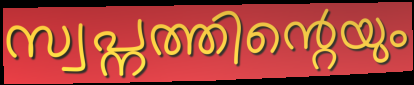
സ്വപ്നത്തിന്റെയും